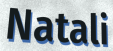
Natali